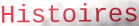
Histoires